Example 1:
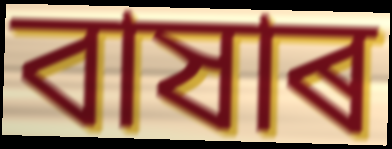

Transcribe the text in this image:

বাষাৰ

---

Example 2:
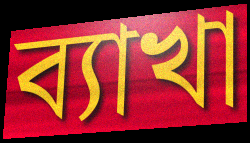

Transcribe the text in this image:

ব্যাখা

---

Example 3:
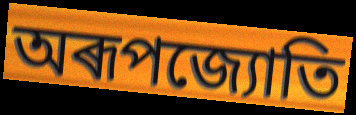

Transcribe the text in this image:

অৰূপজ্যোতি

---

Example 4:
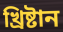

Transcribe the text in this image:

খ্ৰিষ্টান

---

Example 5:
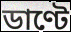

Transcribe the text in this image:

ডাণ্টে